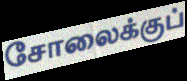
சோலைக்குப்